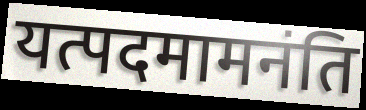
यत्पदमामनंति